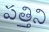
పత్తిని